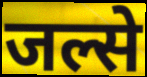
जल्से